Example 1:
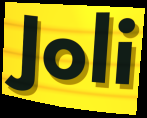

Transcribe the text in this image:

Joli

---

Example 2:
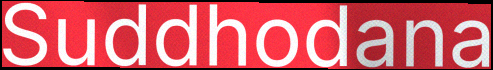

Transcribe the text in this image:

Suddhodana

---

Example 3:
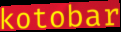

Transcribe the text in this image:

kotobar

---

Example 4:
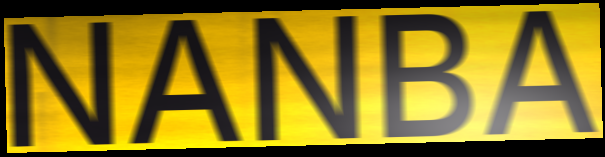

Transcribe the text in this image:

NANBA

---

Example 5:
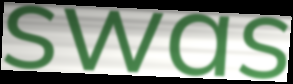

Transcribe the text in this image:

swas